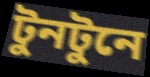
টুনটুনে